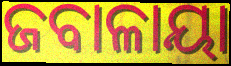
ଜବାଳାୟା